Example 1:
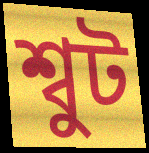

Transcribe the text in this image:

শ্বুট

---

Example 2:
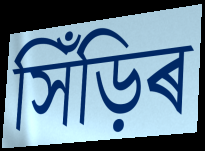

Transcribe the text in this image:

সিঁড়িৰ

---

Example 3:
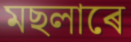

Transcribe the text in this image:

মছলাৰে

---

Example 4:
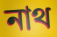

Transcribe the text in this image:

নাথ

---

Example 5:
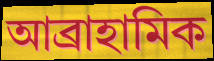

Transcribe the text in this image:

আব্ৰাহামিক